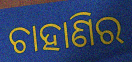
ଚାହାଣିର